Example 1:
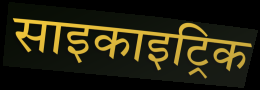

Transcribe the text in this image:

साइकाइट्रिक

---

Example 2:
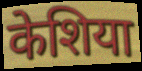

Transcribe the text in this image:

केशिया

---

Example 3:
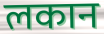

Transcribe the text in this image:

लकान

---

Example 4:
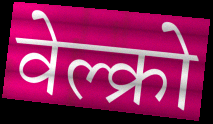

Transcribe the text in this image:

वेल्क्रो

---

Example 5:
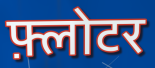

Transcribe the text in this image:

फ़्लोटर